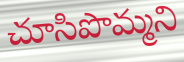
చూసిపొమ్మని